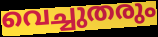
വെച്ചുതരും